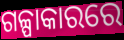
ଗଳ୍ପାକାରରେ